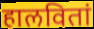
हालवितां